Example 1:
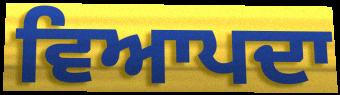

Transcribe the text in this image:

ਵਿਆਪਦਾ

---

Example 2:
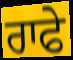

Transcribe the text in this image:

ਰਾਫੇ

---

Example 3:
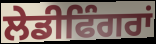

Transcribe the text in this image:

ਲੇਡੀਫਿੰਗਰਾਂ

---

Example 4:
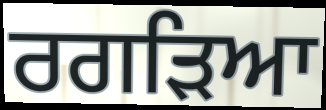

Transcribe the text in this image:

ਰਗੜਿਆ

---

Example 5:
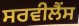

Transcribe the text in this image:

ਸਰਵੀਲੈਂਸ